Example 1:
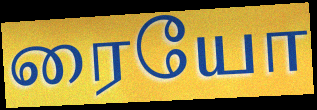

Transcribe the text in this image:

ரையோ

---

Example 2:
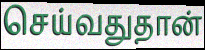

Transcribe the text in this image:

செய்வதுதான்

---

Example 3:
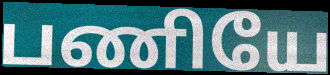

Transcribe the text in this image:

பணியே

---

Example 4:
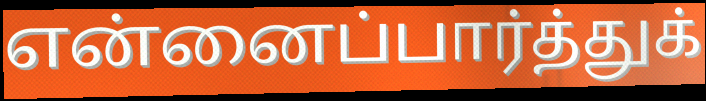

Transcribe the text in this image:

என்னைப்பார்த்துக்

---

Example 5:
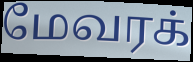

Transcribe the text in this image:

மேவரக்